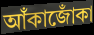
আঁকাজোঁকা